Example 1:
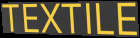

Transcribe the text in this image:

TEXTILE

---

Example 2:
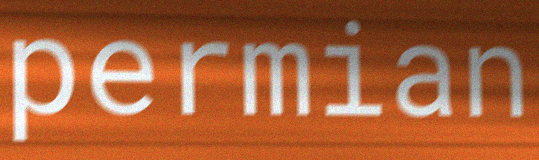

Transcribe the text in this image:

permian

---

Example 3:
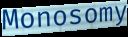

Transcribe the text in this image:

Monosomy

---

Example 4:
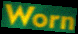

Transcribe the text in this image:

Worn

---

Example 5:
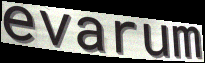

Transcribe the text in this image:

evarum